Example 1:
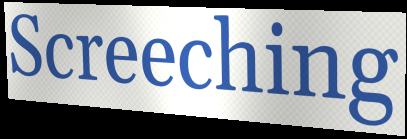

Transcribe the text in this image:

Screeching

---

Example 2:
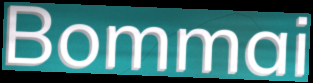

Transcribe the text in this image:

Bommai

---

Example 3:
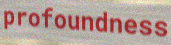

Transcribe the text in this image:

profoundness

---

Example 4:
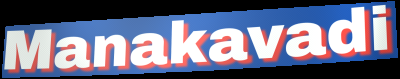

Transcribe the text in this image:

Manakavadi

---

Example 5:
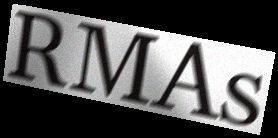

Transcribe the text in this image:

RMAs